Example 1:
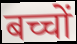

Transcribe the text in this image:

बच्चों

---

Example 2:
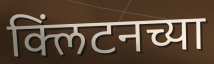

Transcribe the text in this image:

क्लिंटनच्या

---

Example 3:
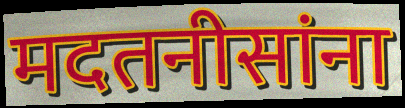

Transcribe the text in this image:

मदतनीसांना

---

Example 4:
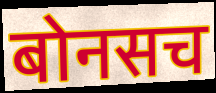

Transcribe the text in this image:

बोनसच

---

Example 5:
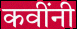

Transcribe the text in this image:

कवींनी